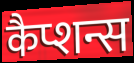
कैप्शन्स